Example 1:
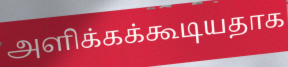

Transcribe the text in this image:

அளிக்கக்கூடியதாக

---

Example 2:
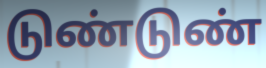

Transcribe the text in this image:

டுண்டுண்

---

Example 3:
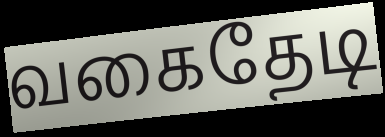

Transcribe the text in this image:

வகைதேடி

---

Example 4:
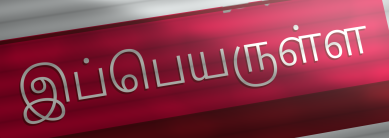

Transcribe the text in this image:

இப்பெயருள்ள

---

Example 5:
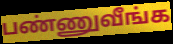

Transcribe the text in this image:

பண்ணுவீங்க